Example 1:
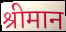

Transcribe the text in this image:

श्रीमान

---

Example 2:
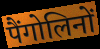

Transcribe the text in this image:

पैंगोलिनों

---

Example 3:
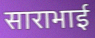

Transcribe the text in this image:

साराभाई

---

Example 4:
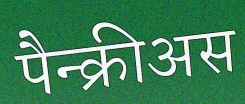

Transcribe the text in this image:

पैन्क्रीअस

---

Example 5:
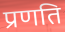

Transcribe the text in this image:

प्रणति